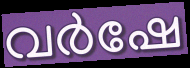
വർഷേ